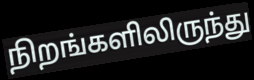
நிறங்களிலிருந்து